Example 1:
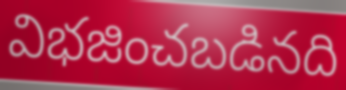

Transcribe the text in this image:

విభజించబడినది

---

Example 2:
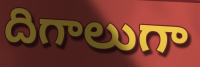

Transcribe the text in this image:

దిగాలుగా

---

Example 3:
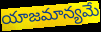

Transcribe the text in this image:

యాజమాన్యమే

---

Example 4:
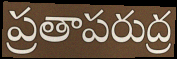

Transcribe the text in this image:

ప్రతాపరుద్ర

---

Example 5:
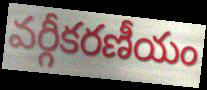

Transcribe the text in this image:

వర్గీకరణీయం